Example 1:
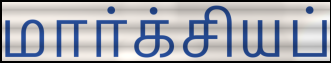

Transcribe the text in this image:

மார்க்சியப்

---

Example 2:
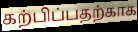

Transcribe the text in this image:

கற்பிப்பதற்காக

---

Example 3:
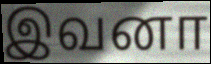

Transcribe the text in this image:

இவனா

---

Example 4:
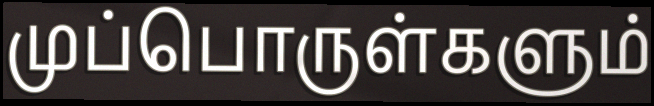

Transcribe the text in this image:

முப்பொருள்களும்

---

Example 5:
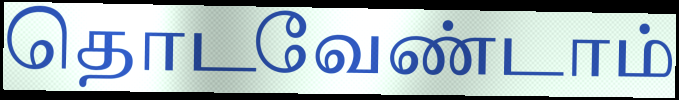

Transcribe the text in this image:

தொடவேண்டாம்